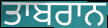
ਤਾਬਰਾਨ